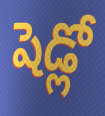
షెడ్లో